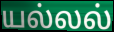
யல்லல்